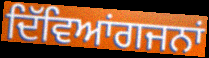
ਦਿੱਵਿਆਂਗਜਨਾਂ